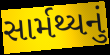
સાર્મથ્યનું